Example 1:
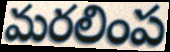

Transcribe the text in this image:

మరలింప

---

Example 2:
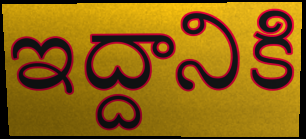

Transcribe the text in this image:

ఇద్దానికి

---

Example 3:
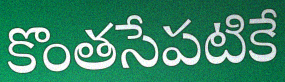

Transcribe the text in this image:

కొంతసేపటికే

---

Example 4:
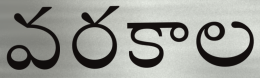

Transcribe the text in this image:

వరకాల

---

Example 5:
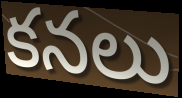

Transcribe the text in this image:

కనలు